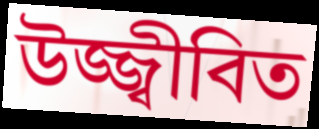
উজ্জ্বীবিত